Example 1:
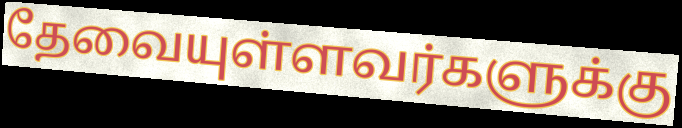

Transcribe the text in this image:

தேவையுள்ளவர்களுக்கு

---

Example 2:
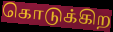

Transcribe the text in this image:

கொடுக்கிற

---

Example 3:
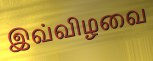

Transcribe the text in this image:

இவ்விழவை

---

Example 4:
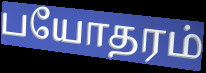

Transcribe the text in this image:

பயோதரம்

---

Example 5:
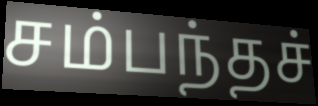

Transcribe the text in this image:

சம்பந்தச்